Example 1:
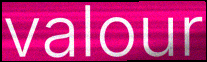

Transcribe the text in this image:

valour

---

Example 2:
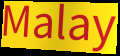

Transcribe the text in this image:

Malay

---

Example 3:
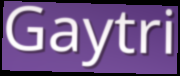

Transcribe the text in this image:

Gaytri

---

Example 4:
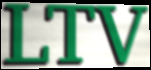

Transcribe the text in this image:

LTV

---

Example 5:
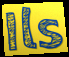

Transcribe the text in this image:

Ils